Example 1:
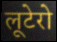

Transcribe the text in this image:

लूटेरो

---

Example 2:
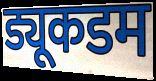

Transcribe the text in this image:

ड्यूकडम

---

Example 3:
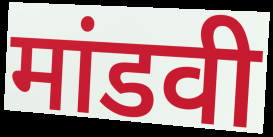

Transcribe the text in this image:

मांडवी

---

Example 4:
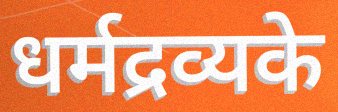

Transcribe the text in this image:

धर्मद्रव्यके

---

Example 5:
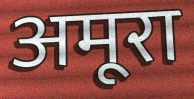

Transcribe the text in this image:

अमूरा